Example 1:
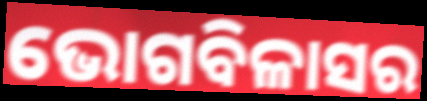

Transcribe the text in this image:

ଭୋଗବିଳାସର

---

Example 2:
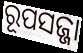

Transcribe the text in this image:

ରୂପସଜ୍ଜା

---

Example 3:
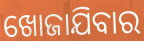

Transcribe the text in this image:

ଖୋଜାଯିବାର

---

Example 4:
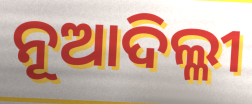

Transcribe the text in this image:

ନୂଆଦିଲ୍ଳୀ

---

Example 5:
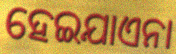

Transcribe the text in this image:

ହେଇଯାଏନା